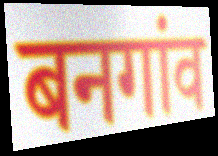
बनगांव